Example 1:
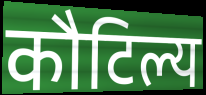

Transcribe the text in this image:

कौटिल्य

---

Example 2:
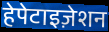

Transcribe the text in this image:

हेपेटाइज़ेशन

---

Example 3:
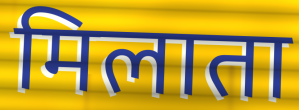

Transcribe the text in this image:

मिलाता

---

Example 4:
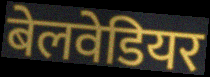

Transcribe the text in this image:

बेलवेडियर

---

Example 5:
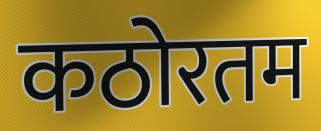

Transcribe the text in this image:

कठोरतम